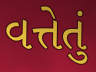
વત્તેતું